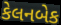
કેલનબેક